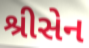
શ્રીસેન